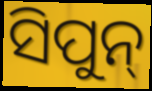
ସିପୁନ୍